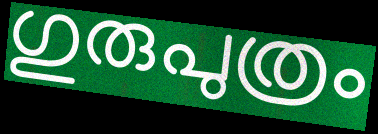
ഗുരുപുത്രം